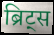
ब्रिट्स